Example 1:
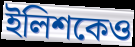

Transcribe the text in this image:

ইলিশকেও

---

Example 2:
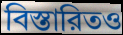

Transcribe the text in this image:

বিস্তারিতও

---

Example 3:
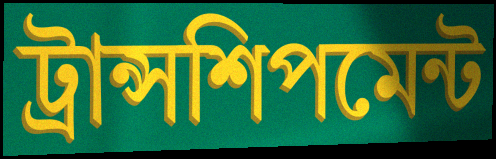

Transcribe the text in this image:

ট্রান্সশিপমেন্ট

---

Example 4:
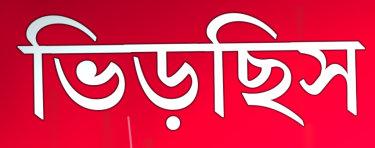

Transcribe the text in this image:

ভিড়ছিস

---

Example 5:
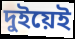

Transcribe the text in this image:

দুইয়েই